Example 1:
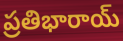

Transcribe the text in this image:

ప్రతిభారాయ్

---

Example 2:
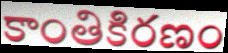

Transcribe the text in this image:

కాంతికిరణం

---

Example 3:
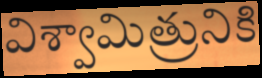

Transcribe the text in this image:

విశ్వామిత్రునికి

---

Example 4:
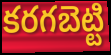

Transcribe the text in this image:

కరగబెట్టి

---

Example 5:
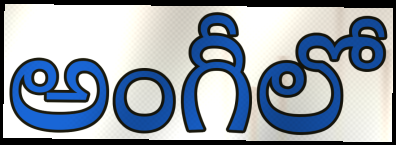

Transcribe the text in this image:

అంగీలో